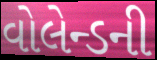
વોલેન્ડની